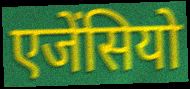
एजेंसियो